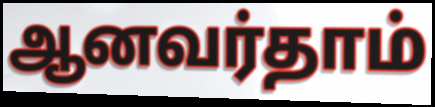
ஆனவர்தாம்